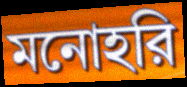
মনোহরি